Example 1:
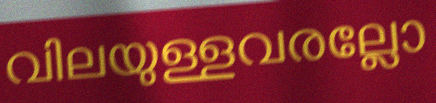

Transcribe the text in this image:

വിലയുള്ളവരല്ലോ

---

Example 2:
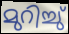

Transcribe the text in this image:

മുറിച്ചു്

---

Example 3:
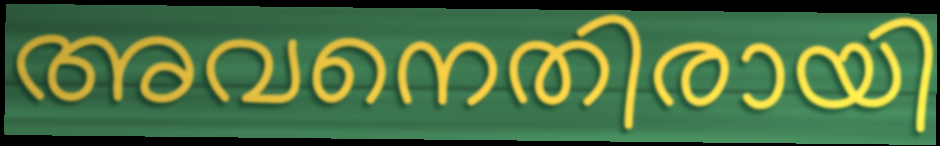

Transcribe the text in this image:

അവനെതിരായി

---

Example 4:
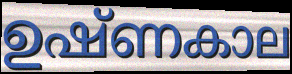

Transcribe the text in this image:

ഉഷ്ണകാല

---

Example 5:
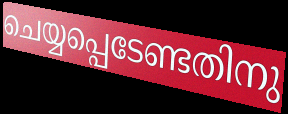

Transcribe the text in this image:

ചെയ്യപ്പെടേണ്ടതിനു